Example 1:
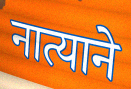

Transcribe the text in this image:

नात्याने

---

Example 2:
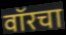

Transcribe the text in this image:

वॉरचा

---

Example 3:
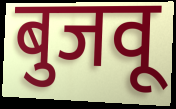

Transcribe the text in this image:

बुजवू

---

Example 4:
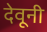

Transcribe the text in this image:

देवूनी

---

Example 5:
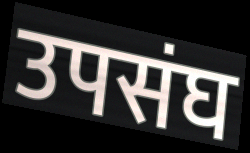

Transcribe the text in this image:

उपसंघ